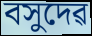
বসুদেৱ